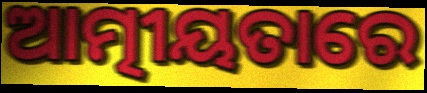
ଆତ୍ମୀୟତାରେ